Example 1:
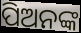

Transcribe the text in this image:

ପିଅନଙ୍କ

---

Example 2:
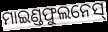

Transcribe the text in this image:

ମାଇଣ୍ଡଫୁଲନେସ୍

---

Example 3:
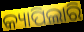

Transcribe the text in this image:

କ୍ୟାପିଲାରି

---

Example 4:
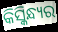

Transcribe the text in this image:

କିସ୍କିନ୍ଧ୍ୟର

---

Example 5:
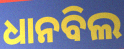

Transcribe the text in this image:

ଧାନବିଲ